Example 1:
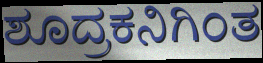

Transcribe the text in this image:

ಶೂದ್ರಕನಿಗಿಂತ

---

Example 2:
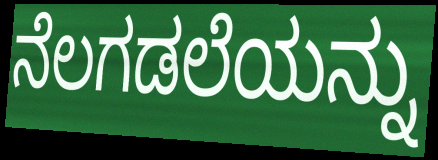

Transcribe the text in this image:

ನೆಲಗಡಲೆಯನ್ನು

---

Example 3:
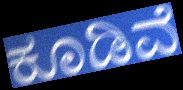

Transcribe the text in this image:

ಕೂಡಿವೆ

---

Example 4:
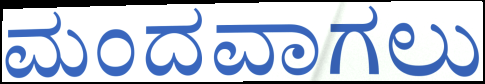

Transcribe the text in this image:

ಮಂದವಾಗಲು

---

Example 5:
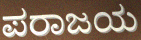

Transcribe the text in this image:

ಪರಾಜಯ